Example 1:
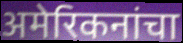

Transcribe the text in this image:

अमेरिकनांचा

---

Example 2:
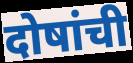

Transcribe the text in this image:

दोषांची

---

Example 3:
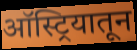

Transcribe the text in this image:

ऑस्ट्रियातून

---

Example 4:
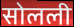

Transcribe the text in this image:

सोलली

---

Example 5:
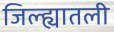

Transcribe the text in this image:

जिल्ह्यातली